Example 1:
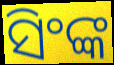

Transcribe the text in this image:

ସିଂଙ୍କ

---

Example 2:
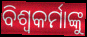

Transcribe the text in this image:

ବିଶ୍ଵକର୍ମାଙ୍କୁ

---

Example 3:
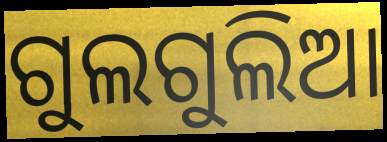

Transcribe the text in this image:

ଗୁଲଗୁଲିଆ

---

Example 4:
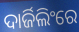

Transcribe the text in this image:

ଦାର୍ଜିଲିଂରେ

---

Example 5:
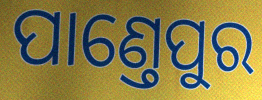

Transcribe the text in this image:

ପାଣ୍ତେପୁର